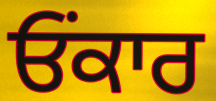
ਓਂਕਾਰ